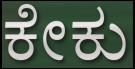
ಕೇಕು